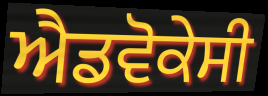
ਐਡਵੋਕੇਸੀ